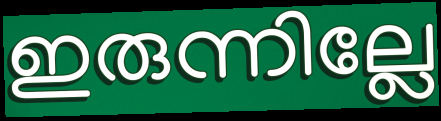
ഇരുന്നില്ലേ